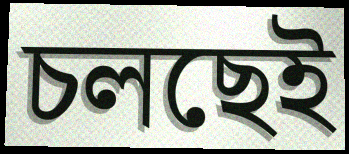
চলছেই